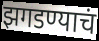
झगडण्याचं